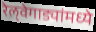
रेल्वेगाड्यांमध्ये